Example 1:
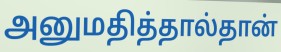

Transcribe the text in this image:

அனுமதித்தால்தான்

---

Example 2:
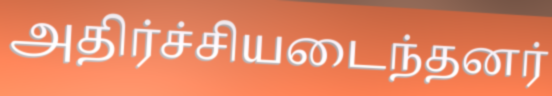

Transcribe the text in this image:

அதிர்ச்சியடைந்தனர்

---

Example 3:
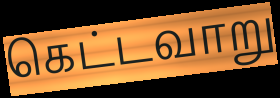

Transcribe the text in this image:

கெட்டவாறு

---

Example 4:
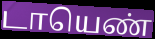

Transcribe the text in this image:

டாயெண்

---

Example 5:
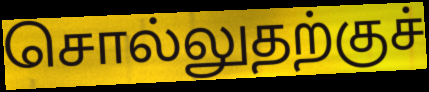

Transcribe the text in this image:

சொல்லுதற்குச்